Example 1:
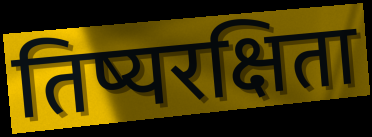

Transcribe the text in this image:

तिष्यरक्षिता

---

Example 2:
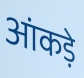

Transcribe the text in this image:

आंकड़े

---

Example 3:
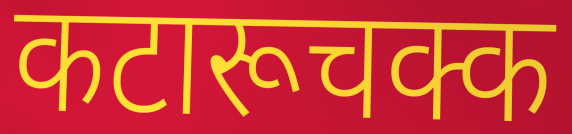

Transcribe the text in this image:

कटारूचक्क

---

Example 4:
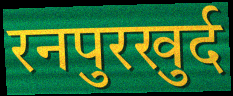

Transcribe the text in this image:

रनपुरखुर्द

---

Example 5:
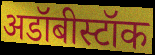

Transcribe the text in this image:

अडॉबीस्टॉक